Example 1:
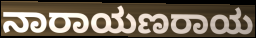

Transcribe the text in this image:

ನಾರಾಯಣರಾಯ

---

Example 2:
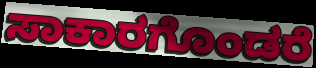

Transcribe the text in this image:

ಸಾಕಾರಗೊಂಡರೆ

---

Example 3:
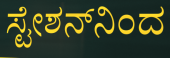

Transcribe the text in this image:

ಸ್ಟೇಶನ್‌ನಿಂದ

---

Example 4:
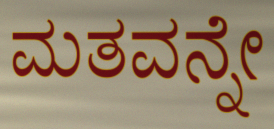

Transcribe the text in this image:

ಮತವನ್ನೇ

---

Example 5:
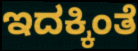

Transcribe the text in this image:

ಇದಕ್ಕಿಂತೆ